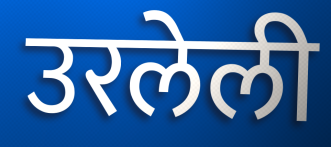
उरलेली